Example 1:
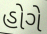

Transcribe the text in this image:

હોગે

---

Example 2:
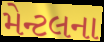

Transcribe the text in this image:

મેન્ટલના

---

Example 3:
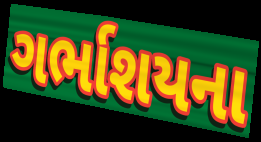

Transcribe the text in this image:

ગર્ભાશયના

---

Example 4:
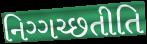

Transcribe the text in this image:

નિગ્ગચ્છતીતિ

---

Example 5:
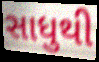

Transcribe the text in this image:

સાધુથી